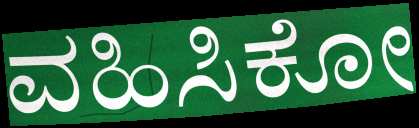
ವಹಿಸಿಕೋ